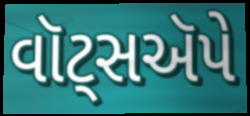
વૉટ્સઍપે